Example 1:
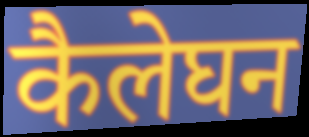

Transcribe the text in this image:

कैलेघन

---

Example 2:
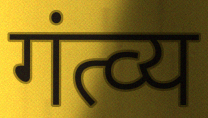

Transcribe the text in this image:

गंत्व्य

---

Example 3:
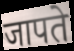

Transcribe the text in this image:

जापते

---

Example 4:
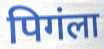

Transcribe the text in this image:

पिगंला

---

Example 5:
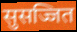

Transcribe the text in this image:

सुसज्जित